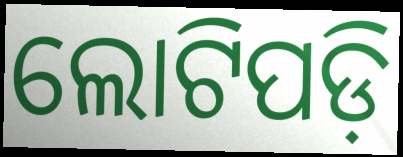
ଲୋଟିପଡ଼ି